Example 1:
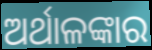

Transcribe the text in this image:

ଅର୍ଥାଳଙ୍କାର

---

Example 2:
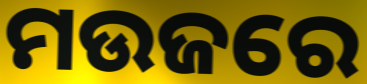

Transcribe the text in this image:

ମଉଜରେ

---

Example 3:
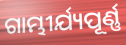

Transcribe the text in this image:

ଗାମ୍ଭୀର୍ଯ୍ୟପୂର୍ଣ୍ଣ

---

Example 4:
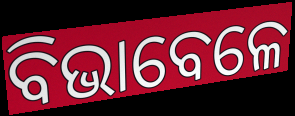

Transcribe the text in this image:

ବିଭାବେଳେ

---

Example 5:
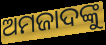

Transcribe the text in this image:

ଅମଜାଦଙ୍କୁ